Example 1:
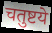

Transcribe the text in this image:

चतुष्टये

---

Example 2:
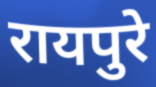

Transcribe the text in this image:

रायपुरे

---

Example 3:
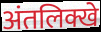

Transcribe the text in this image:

अंतलिक्खे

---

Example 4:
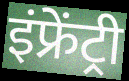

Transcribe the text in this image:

इंफ्रेंट्री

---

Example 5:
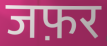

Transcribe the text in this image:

जफ़र